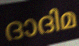
ദാദിമ